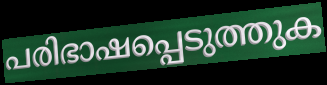
പരിഭാഷപ്പെടുത്തുക